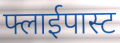
फ्लाईपास्ट